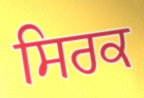
ਸਿਰਕ